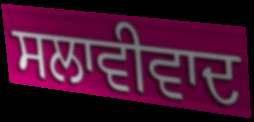
ਸਲਾਵੀਵਾਦ